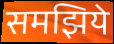
समझिये